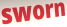
sworn